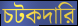
চটকদারি